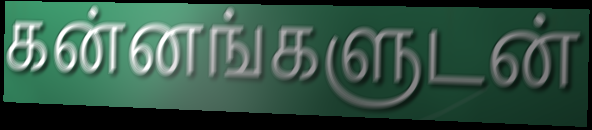
கன்னங்களுடன்